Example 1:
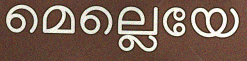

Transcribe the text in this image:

മെല്ലെയേ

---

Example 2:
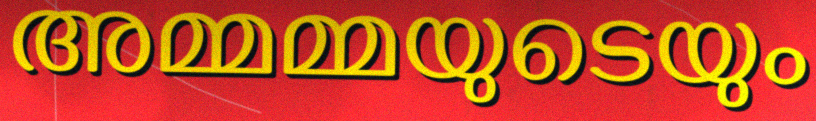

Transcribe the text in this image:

അമ്മമ്മയുടെയും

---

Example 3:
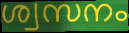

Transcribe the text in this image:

ശ്വസനം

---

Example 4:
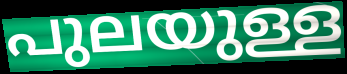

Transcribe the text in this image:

പുലയുള്ള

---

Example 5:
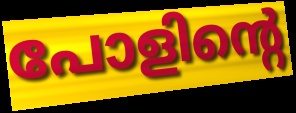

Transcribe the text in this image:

പോളിന്റെ